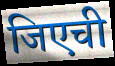
जिएची